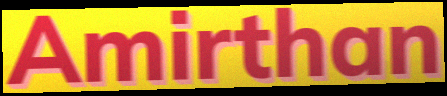
Amirthan